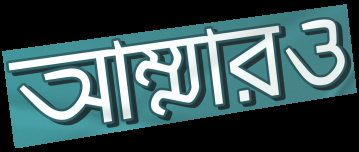
আম্মারও